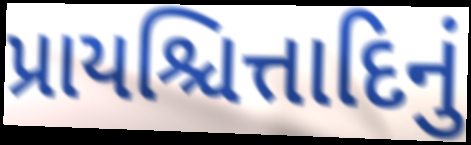
પ્રાયશ્ચિત્તાદિનું